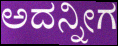
ಅದನ್ನೀಗ